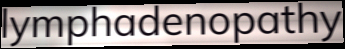
lymphadenopathy